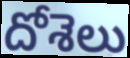
దోశెలు